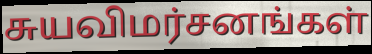
சுயவிமர்சனங்கள்